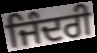
ਜਿੰਦਰੀ